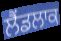
ਲੈਂਡਲਾਕ